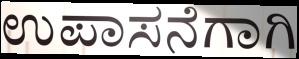
ಉಪಾಸನೆಗಾಗಿ